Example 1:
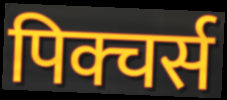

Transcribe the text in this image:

पिक्चर्स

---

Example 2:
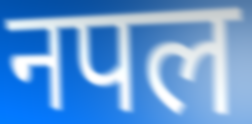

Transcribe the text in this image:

नपल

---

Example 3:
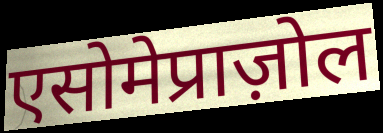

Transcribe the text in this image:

एसोमेप्राज़ोल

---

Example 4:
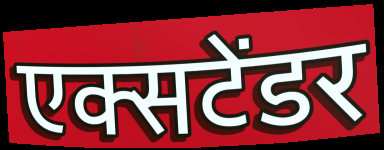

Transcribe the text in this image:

एक्सटेंडर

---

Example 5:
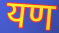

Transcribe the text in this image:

यण